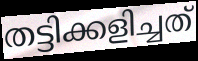
തട്ടിക്കളിച്ചത്